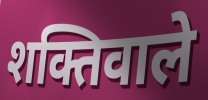
शक्तिवाले